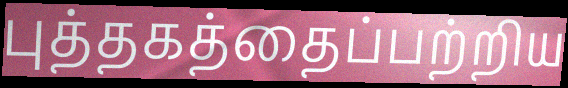
புத்தகத்தைப்பற்றிய